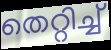
തെറ്റിച്ച്